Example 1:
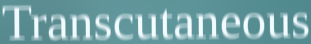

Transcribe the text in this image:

Transcutaneous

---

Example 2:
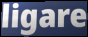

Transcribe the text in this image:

ligare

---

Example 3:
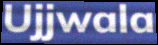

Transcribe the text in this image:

Ujjwala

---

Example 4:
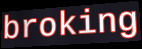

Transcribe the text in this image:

broking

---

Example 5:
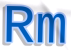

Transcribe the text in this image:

Rm